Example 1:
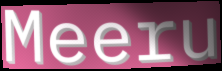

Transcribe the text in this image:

Meeru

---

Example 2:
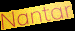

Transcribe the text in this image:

Nantar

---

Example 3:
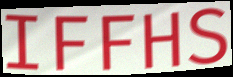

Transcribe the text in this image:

IFFHS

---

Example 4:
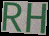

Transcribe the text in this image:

RH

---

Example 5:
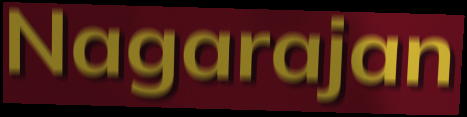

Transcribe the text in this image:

Nagarajan